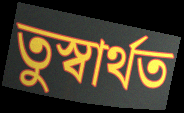
তুস্বাৰ্থত